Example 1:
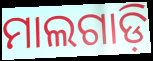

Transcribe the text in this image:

ମାଲଗାଡ଼ି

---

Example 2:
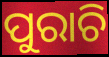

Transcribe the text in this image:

ପୁରାଚି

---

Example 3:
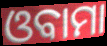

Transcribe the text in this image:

ଓବାମା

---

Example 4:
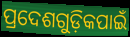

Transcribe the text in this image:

ପ୍ରଦେଶଗୁଡ଼ିକପାଇଁ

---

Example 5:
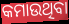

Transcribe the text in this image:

କମାଉଥିବା